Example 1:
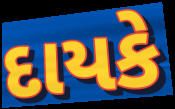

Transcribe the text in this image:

દાયકે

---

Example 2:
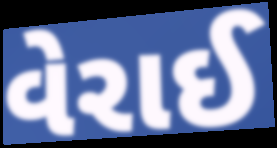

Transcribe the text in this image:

વેરાઈ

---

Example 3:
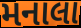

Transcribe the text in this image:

મનાલા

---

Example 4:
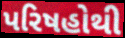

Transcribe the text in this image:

પરિષહોથી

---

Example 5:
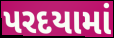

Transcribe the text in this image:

પરદયામાં